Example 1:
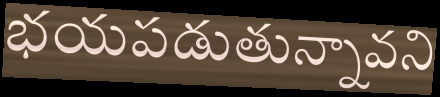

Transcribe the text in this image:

భయపడుతున్నావని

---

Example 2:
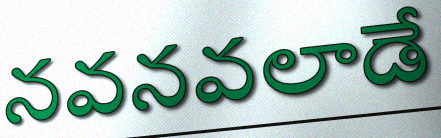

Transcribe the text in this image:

నవనవలాడే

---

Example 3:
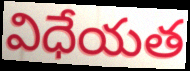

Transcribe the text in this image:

విధేయత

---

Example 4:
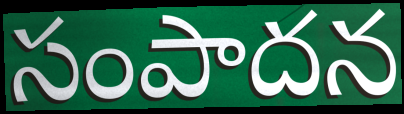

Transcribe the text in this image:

సంపాదన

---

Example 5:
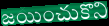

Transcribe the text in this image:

జయించుకొని